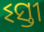
ଽସ୍ତୀ